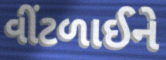
વીંટળાઈને